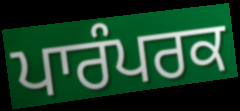
ਪਾਰੰਪਰਕ